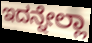
ಇದನ್ನೇಲ್ಲಾ